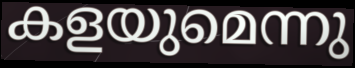
കളയുമെന്നു